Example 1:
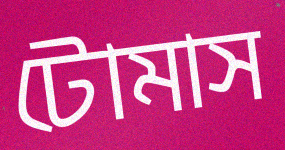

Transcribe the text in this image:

টোমাস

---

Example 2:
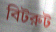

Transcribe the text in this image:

বিটরুট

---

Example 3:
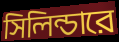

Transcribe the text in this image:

সিলিন্ডারে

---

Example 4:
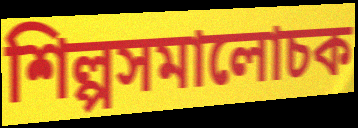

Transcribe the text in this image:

শিল্পসমালোচক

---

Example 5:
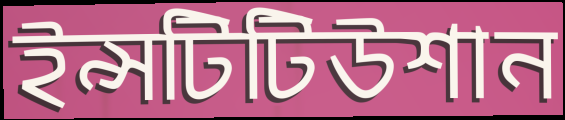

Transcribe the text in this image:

ইন্সটিটিউশান